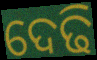
ଦେଢି